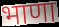
भाणा